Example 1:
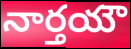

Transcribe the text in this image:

నార్తయౌ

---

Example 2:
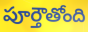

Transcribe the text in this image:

పూర్తౌతోంది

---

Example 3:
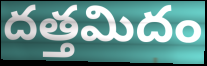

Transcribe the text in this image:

దత్తమిదం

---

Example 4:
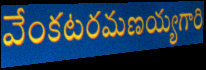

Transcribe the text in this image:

వేంకటరమణయ్యగారి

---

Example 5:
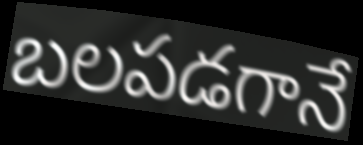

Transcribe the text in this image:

బలపడగానే